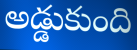
అడ్డుకుంది